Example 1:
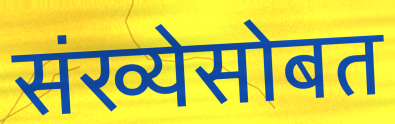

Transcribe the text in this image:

संख्येसोबत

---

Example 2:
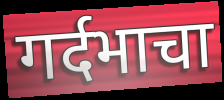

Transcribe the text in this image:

गर्दभाचा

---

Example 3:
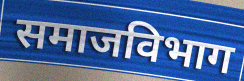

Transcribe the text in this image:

समाजविभाग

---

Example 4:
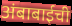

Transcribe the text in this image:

अंबाबाईची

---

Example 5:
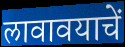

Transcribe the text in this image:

लावावयाचें